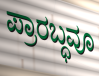
ಪ್ರಾರಬ್ಧವೂ